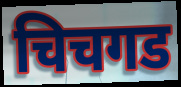
चिचगड